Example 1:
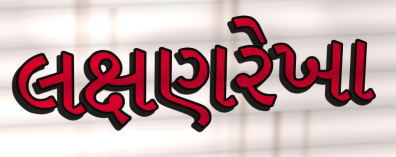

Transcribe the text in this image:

લક્ષણરેખા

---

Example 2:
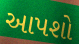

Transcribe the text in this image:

આપશો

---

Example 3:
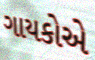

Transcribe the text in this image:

ગાયકોએ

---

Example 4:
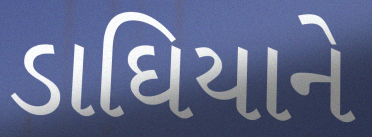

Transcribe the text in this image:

ડાઘિયાને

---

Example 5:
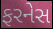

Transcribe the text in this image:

ફરનેસ